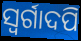
ସ୍ୱର୍ଗାଦପି